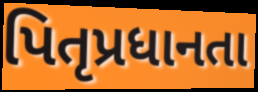
પિતૃપ્રધાનતા